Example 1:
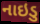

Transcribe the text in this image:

નાઇડુ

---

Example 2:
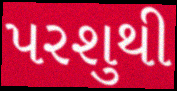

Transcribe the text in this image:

પરશુથી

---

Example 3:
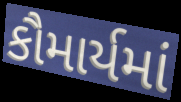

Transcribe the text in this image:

કૌમાર્યમાં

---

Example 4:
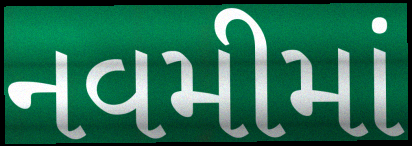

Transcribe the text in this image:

નવમીમાં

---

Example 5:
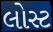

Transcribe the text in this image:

લોસ્ટ